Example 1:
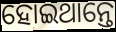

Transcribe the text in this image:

ହୋଇଥାନ୍ତେ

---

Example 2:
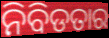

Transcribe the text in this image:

ନିବିଡତାର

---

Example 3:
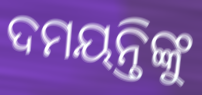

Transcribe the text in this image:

ଦମୟନ୍ତିଙ୍କୁ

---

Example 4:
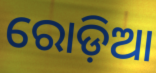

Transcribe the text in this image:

ରୋଡ଼ିଆ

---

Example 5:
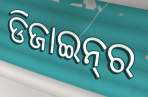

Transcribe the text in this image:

ଡିଜାଇନ୍‌ର